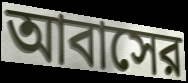
আবাসের